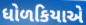
ધોળકિયાએ